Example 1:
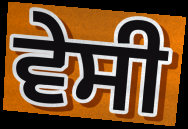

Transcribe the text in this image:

ਵੇਸੀ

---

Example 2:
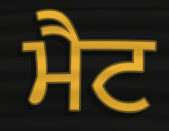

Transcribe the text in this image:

ਮੈਟ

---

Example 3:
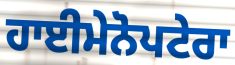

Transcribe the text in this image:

ਹਾਈਮੇਨੋਪਟੇਰਾ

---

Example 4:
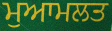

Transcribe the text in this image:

ਮੁਆਮਲਤ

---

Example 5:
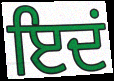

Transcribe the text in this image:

ਇਦਂ